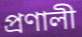
প্রণালী